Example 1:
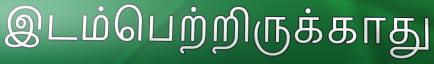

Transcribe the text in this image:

இடம்பெற்றிருக்காது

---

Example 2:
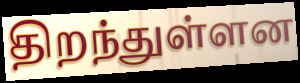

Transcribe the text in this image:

திறந்துள்ளன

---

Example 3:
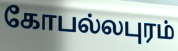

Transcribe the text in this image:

கோபல்லபுரம்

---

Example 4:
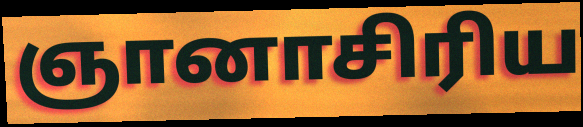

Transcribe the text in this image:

ஞானாசிரிய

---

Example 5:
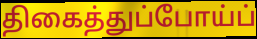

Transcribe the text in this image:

திகைத்துப்போய்ப்